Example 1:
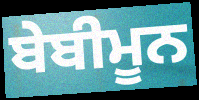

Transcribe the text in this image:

ਬੇਬੀਮੂਨ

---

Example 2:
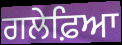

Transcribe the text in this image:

ਗਲੇਫ਼ਿਆ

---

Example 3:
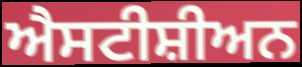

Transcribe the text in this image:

ਐਸਟੀਸ਼ੀਅਨ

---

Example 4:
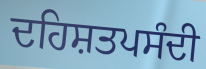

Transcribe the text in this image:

ਦਹਿਸ਼ਤਪਸੰਦੀ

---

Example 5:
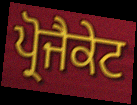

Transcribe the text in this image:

ਪ੍ਰੋਜੈਕੇਟ